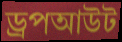
ড্রপআউট